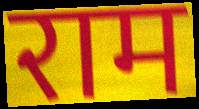
राम